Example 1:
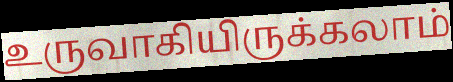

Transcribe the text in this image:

உருவாகியிருக்கலாம்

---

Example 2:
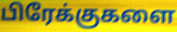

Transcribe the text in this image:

பிரேக்குகளை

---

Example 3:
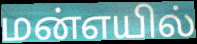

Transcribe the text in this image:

மன்எயில்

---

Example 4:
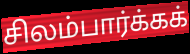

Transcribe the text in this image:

சிலம்பார்க்கக்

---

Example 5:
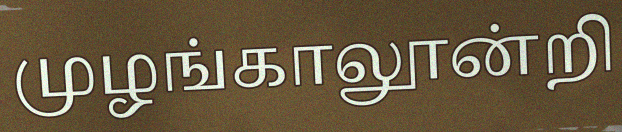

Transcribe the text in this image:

முழங்காலூன்றி